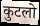
कुटलो